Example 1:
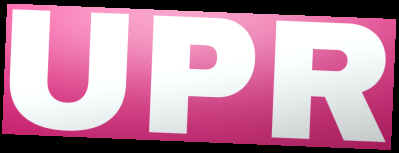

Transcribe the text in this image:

UPR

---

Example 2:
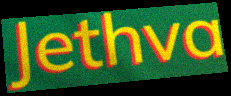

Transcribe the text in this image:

Jethva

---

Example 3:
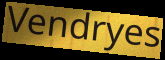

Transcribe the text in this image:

Vendryes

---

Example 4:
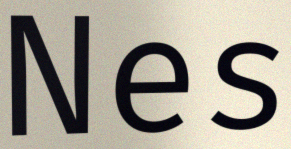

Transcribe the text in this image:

Nes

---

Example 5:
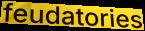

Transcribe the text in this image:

feudatories